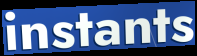
instants